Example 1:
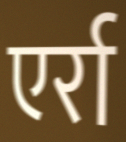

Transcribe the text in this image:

एर्रा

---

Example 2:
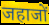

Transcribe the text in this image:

जहाजों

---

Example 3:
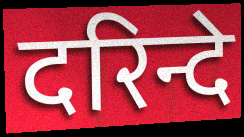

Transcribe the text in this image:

दरिन्दे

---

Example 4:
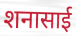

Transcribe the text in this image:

शनासाई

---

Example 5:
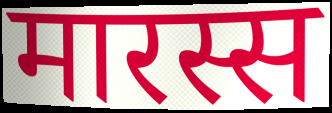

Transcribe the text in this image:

मारस्स